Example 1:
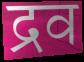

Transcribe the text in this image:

द्रव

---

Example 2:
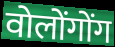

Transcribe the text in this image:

वोलोंगोंग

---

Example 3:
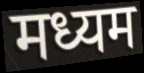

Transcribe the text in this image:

मध्यम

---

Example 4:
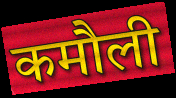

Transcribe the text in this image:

कमौली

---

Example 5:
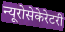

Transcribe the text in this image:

न्यूरोसेकेरेटरी